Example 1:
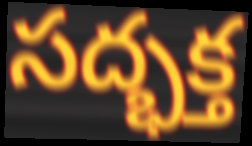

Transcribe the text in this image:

సద్భక్త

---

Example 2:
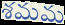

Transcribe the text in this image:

శమమ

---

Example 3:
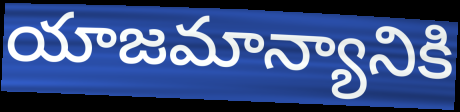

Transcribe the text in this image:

యాజమాన్యానికి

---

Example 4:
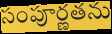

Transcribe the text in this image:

సంపూర్ణతను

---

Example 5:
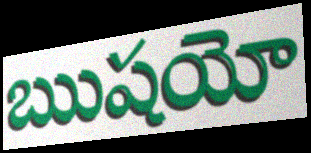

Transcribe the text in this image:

ఋషయో